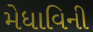
મેધાવિની